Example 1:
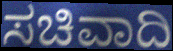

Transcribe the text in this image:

ಸಚಿವಾದಿ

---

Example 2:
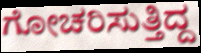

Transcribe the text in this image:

ಗೋಚರಿಸುತ್ತಿದ್ದ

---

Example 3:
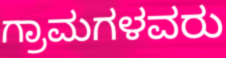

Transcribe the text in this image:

ಗ್ರಾಮಗಳವರು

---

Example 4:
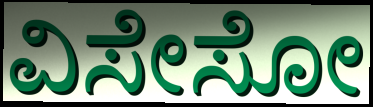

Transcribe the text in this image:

ವಿಸೇಸೋ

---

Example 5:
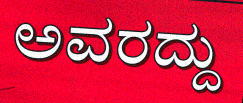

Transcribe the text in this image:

ಅವರದ್ದು